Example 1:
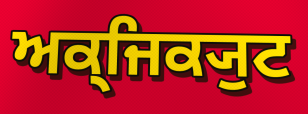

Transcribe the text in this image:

ਅਕ੍ਜਿਕ੍ਯੁਟ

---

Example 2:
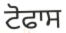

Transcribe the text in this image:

ਟੋਫਾਸ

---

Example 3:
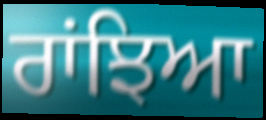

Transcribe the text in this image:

ਰਾਂਝਿਆ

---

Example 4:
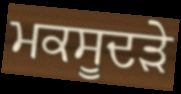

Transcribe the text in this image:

ਮਕਸੂਦੜੇ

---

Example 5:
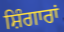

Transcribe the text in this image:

ਸ਼ਿੰਗਾਰਾਂ